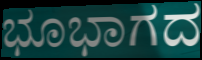
ಭೂಭಾಗದ